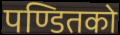
पण्डितको